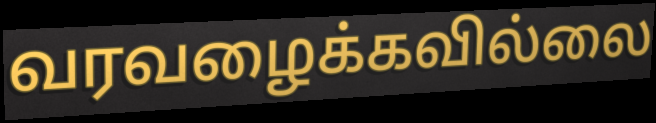
வரவழைக்கவில்லை